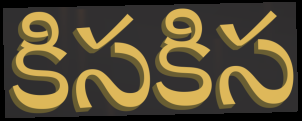
కిసకిస